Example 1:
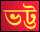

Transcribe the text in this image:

ভট্ট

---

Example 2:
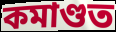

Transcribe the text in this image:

কমাণ্ডত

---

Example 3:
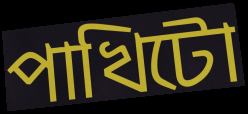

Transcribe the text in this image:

পাখিটো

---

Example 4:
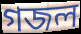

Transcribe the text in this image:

গজল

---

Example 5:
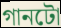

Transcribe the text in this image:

গানটো